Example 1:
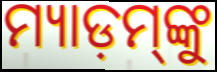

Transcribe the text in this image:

ମ୍ୟାଡ଼ମ୍‌ଙ୍କୁ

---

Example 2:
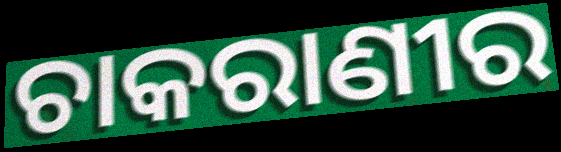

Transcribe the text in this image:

ଚାକରାଣୀର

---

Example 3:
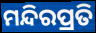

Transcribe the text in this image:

ମନ୍ଦିରପ୍ରତି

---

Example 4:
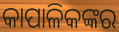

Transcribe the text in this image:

କାପାଳିକଙ୍କର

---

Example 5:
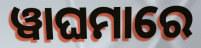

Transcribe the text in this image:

ୱାଘମାରେ